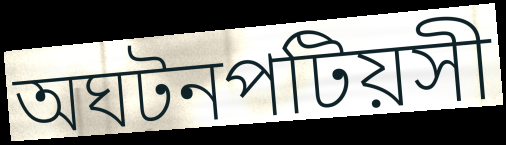
অঘটনপটিয়সী